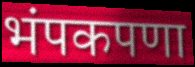
भंपकपणा